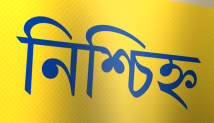
নিশ্চিহ্ন